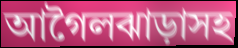
আগৈলঝাড়াসহ